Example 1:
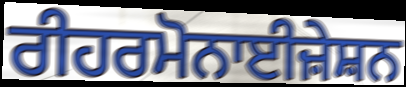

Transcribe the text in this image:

ਰੀਹਰਮੋਨਾਈਜ਼ੇਸ਼ਨ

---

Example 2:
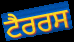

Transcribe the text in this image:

ਟੈਰਰਸ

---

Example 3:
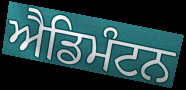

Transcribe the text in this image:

ਐਡਿਮੰਟਨ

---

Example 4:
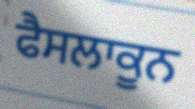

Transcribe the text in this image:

ਫੈਸਲਾਕੂਨ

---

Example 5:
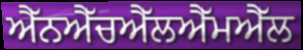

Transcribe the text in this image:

ਐੱਨਐੱਚਐੱਲਐੱਮਐੱਲ